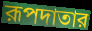
রূপদাতার